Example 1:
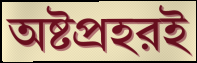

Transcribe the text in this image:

অষ্টপ্রহরই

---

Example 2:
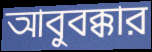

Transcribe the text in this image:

আবুবক্কার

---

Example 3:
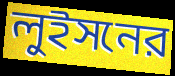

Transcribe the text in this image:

লুইসনের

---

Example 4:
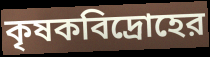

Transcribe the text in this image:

কৃষকবিদ্রোহের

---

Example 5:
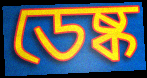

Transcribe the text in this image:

ডেষ্ক